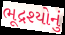
ભૂદ્રશ્યોનું